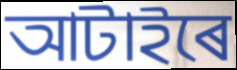
আটাইৰে